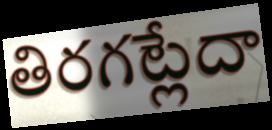
తిరగట్లేదా